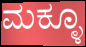
ಮಕ್ಳೂ